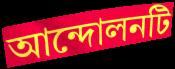
আন্দোলনটি